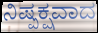
ನಿಷ್ಪಕ್ಷವಾದ